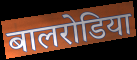
बालरोडिया